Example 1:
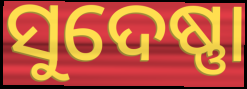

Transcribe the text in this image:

ସୁଦେଷ୍ଣା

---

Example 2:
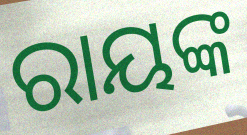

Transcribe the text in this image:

ରାୟଙ୍କ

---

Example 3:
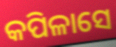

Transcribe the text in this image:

କପିଳାସେ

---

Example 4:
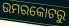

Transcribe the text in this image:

ଉମରକୋଟରୁ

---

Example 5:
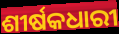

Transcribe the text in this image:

ଶୀର୍ଷକଧାରୀ